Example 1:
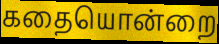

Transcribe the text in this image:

கதையொன்றை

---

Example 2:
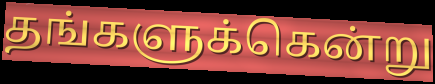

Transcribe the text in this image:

தங்களுக்கென்று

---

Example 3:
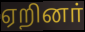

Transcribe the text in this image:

ஏறினர்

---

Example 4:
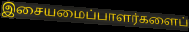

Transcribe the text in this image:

இசையமைப்பாளர்களைப்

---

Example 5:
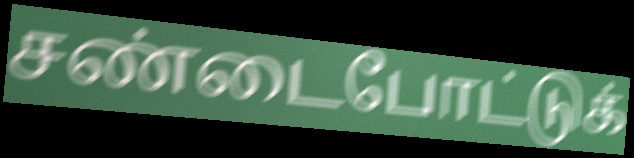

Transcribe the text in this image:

சண்டைபோட்டுக்